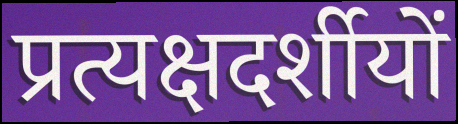
प्रत्यक्षदर्शीयों